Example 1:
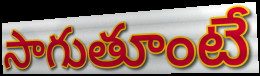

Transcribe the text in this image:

సాగుతూంటే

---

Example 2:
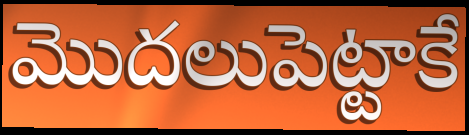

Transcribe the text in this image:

మొదలుపెట్టాకే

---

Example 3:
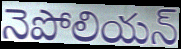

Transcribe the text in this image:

నెపోలియన్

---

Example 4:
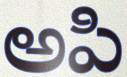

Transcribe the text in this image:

అపి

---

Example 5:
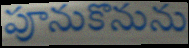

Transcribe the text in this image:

పూనుకొనును